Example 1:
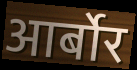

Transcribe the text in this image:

आर्बोर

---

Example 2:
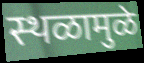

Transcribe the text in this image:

स्थळामुळे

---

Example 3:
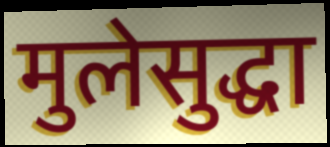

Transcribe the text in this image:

मुलेसुद्धा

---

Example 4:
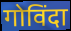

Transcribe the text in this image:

गोविंदा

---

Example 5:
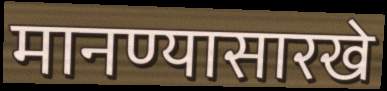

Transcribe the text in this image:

मानण्यासारखे